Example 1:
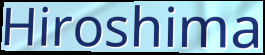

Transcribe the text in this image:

Hiroshima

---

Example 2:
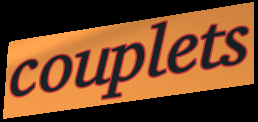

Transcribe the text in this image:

couplets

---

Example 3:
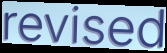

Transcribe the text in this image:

revised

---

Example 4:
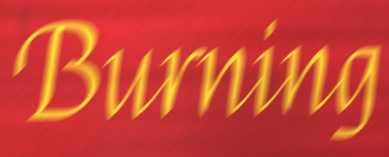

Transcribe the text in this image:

Burning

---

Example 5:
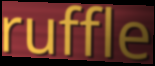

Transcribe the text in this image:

ruffle